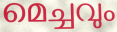
മെച്ചവും